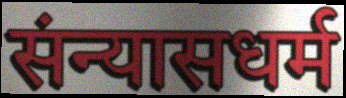
संन्यासधर्म